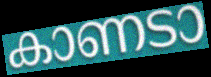
കാണടാ